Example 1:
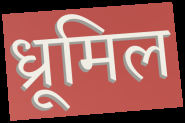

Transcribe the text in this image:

ध्रूमिल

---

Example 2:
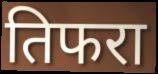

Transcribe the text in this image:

तिफरा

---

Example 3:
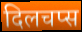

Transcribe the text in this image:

दिलचप्स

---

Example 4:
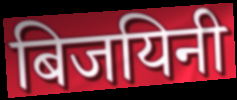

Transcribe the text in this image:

बिजयिनी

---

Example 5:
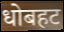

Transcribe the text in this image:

धोबहट